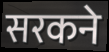
सरकने